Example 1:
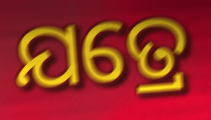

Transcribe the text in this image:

ଯତ୍ରେ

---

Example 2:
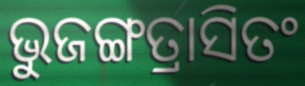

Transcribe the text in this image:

ଭୁଜଙ୍ଗତ୍ରାସିତଂ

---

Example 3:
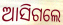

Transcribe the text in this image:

ଆସିଗଲେ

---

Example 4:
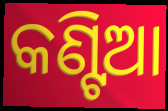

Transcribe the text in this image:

କଣ୍ଟିଆ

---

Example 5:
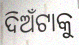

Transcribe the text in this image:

ଦିଅଁଟାକୁ